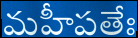
మహీపతేః